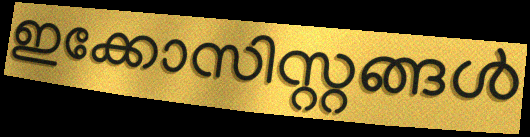
ഇക്കോസിസ്റ്റങ്ങൾ